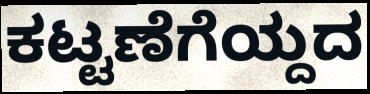
ಕಟ್ಟಣೆಗೆಯ್ದದ